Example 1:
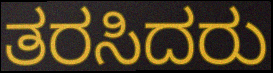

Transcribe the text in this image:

ತರಸಿದರು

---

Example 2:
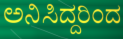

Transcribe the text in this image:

ಅನಿಸಿದ್ದರಿಂದ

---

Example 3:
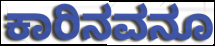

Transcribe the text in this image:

ಕಾರಿನವನೂ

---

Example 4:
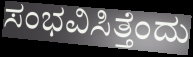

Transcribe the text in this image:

ಸಂಭವಿಸಿತ್ತೆಂದು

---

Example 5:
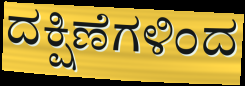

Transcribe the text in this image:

ದಕ್ಷಿಣೆಗಳಿಂದ